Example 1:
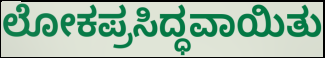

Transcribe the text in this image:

ಲೋಕಪ್ರಸಿದ್ಧವಾಯಿತು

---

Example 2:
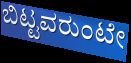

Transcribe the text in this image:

ಬಿಟ್ಟವರುಂಟೇ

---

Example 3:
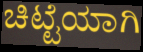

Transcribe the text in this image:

ಚಿಟ್ಟೆಯಾಗಿ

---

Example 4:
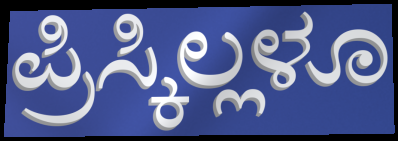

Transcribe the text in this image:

ಪ್ರಿಸ್ಕಿಲ್ಲಳೂ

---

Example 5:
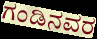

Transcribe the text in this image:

ಗಂಡಿನವರ